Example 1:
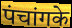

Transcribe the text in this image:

पंचांगके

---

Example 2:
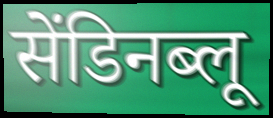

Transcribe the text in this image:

सेंडिनब्लू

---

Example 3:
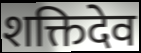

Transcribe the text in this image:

शक्तिदेव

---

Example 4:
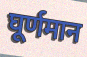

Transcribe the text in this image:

घूर्णमान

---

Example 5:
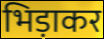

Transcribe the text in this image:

भिड़ाकर